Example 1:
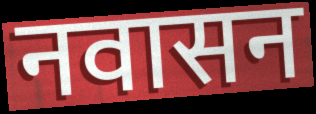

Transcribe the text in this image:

नवासन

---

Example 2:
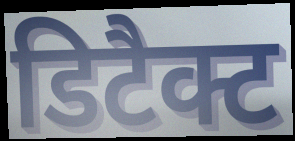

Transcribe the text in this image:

डिटैक्ट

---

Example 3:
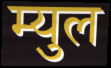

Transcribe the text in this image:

म्युल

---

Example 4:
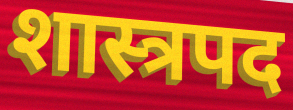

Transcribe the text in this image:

शास्त्रपद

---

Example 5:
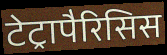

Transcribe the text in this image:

टेट्रापैरिसिस